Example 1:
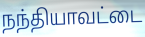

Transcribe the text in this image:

நந்தியாவட்டை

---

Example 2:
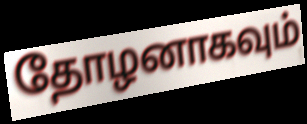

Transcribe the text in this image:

தோழனாகவும்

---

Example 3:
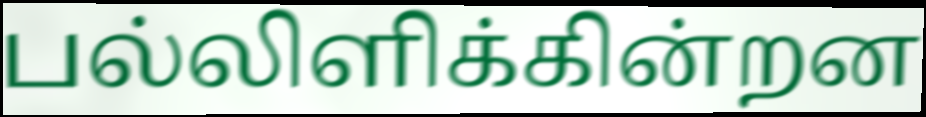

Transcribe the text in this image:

பல்லிளிக்கின்றன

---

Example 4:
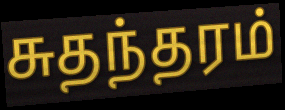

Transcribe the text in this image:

சுதந்தரம்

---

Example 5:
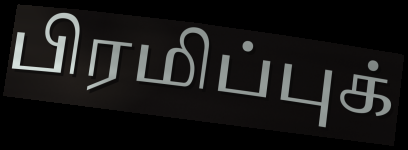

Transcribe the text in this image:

பிரமிப்புக்